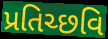
પ્રતિચ્છવિ